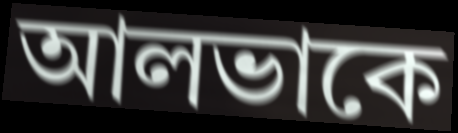
আলভাকে